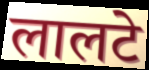
लालटे